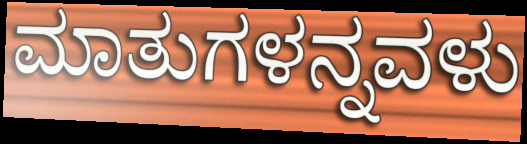
ಮಾತುಗಳನ್ನವಳು